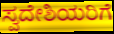
ಸ್ವದೇಶಿಯರಿಗೆ